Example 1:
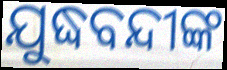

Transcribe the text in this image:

ଯୁଦ୍ଧବନ୍ଦୀଙ୍କ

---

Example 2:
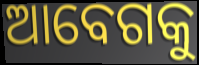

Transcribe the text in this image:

ଆବେଗକୁ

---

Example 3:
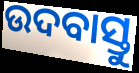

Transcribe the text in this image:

ଉଦବାସ୍ତୁ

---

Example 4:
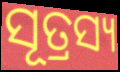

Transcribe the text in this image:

ସୂତ୍ରସ୍ୟ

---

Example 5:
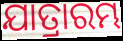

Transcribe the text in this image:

ଯାତ୍ରାରମ୍ଭ